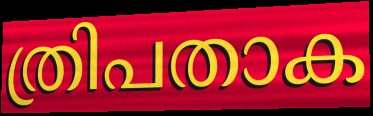
ത്രിപതാക